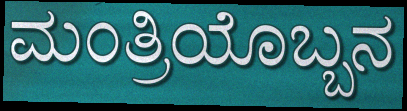
ಮಂತ್ರಿಯೊಬ್ಬನ